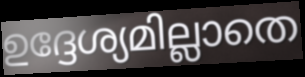
ഉദ്ദേശ്യമില്ലാതെ